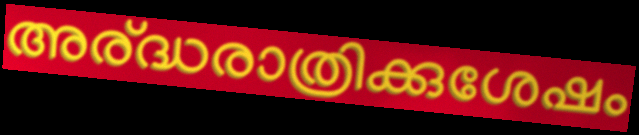
അര്ദ്ധരാത്രിക്കുശേഷം